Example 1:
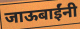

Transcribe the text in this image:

जाऊबाईंनी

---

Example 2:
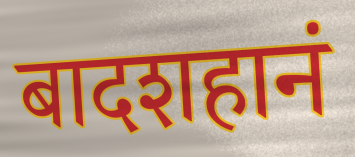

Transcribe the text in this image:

बादशहानं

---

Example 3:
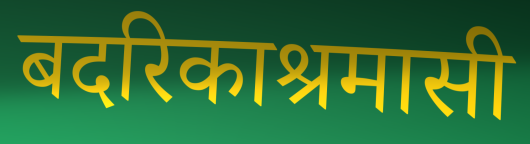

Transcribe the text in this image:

बदरिकाश्रमासी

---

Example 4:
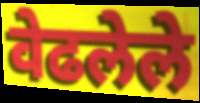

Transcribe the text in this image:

वेढलेले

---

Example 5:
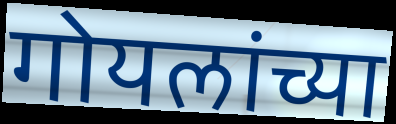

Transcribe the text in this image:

गोयलांच्या